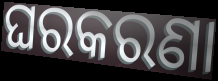
ଘରକରଣା